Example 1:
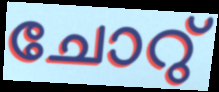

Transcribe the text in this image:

ചോറു്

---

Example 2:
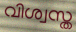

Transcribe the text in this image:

വിശ്വസ്ത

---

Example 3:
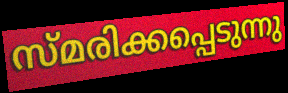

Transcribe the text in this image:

സ്മരിക്കപ്പെടുന്നു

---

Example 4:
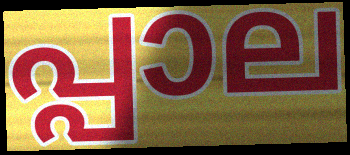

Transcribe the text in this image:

പ്പാല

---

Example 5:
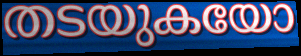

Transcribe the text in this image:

തടയുകയോ